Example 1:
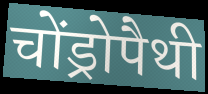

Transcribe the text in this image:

चोंड्रोपैथी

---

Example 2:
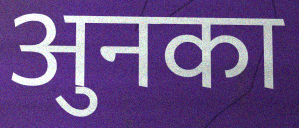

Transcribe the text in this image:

अुनका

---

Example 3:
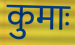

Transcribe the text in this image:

कुमाः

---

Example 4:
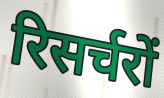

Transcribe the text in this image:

रिसर्चरों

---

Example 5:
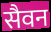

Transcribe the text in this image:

सैवन